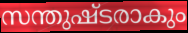
സന്തുഷ്ടരാകും